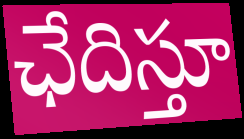
ఛేదిస్తూ